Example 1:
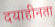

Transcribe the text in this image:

दयाहीनता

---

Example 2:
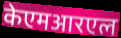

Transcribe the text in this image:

केएमआरएल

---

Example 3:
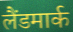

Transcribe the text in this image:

लैंडमार्क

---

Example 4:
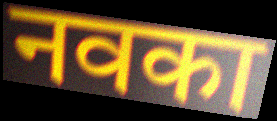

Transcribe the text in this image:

नवका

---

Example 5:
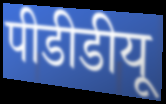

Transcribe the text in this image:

पीडीडीयू